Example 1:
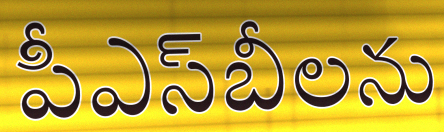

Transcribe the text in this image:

పీఎస్‌బీలను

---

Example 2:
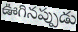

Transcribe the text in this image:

ఊగినప్పుడు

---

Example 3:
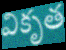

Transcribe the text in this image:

వికృత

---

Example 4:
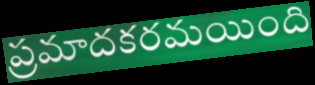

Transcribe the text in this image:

ప్రమాదకరమయింది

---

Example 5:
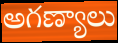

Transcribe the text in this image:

అగణ్యాలు